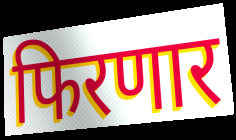
फिरणार